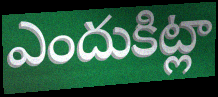
ఎందుకిట్లా